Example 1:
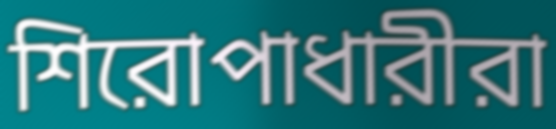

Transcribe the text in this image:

শিরোপাধারীরা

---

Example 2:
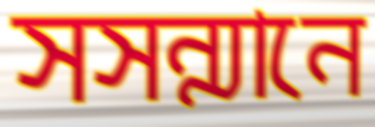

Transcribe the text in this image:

সসন্মানে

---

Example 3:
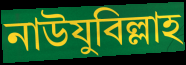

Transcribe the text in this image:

নাউযুবিল্লাহ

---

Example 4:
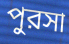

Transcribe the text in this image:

পুরসা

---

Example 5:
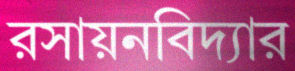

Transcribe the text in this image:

রসায়নবিদ্যার